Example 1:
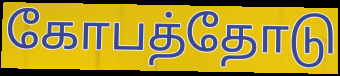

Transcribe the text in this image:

கோபத்தோடு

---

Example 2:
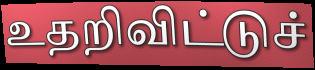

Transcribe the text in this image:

உதறிவிட்டுச்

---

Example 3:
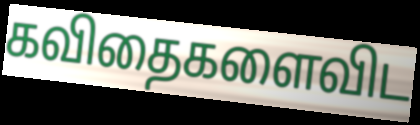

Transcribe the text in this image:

கவிதைகளைவிட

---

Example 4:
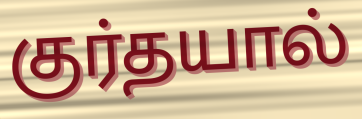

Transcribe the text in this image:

குர்தயால்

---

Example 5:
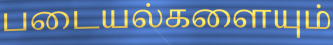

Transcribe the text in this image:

படையல்களையும்